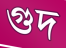
গুদ